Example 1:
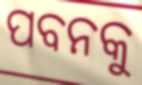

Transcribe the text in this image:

ପବନକୁ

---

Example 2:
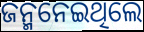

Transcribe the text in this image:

ଜନ୍ମନେଇଥିଲେ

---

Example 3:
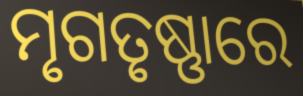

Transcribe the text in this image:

ମୃଗତୃଷ୍ଣାରେ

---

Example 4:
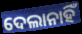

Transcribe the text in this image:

ଦେଲାନାହିଁ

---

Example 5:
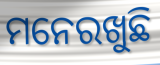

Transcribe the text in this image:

ମନେରଖୁଛି